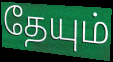
தேயும்